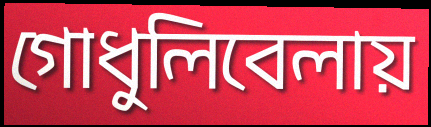
গোধুলিবেলায়